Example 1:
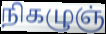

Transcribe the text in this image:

நிகழுஞ்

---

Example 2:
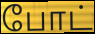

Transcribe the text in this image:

போட்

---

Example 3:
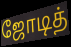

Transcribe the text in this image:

ஜோடித்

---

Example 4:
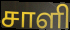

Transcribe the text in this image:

சாளி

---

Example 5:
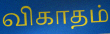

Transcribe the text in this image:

விகாதம்